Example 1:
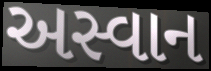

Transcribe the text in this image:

અસ્વાન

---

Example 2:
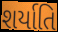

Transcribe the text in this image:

શર્યાતિ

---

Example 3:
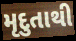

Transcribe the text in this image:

મૃદુતાથી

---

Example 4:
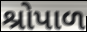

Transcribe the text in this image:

શ્રોપાળ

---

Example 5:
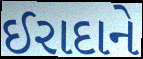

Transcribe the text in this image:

ઈરાદાને